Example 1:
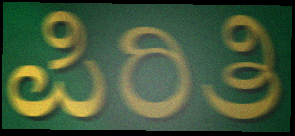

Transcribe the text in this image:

ಪಿರಿತಿ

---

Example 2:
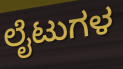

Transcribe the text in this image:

ಲೈಟುಗಳ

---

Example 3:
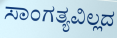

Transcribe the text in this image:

ಸಾಂಗತ್ಯವಿಲ್ಲದ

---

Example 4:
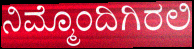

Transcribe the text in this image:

ನಿಮ್ಮೊಂದಿಗಿರಲಿ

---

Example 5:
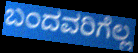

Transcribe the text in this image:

ಬಂದವರಿಗೆಲ್ಲ